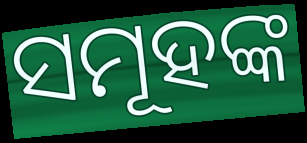
ସମୂହଙ୍କ